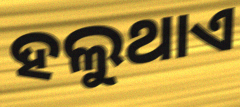
ହଲୁଥାଏ